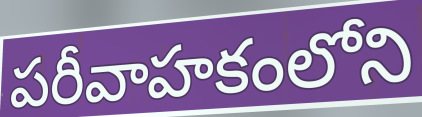
పరీవాహకంలోని